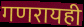
गणरायही